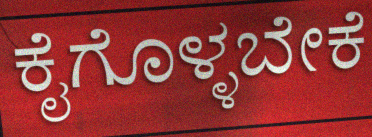
ಕೈಗೊಳ್ಳಬೇಕೆ